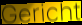
Gericht